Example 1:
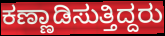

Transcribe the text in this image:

ಕಣ್ಣಾಡಿಸುತ್ತಿದ್ದರು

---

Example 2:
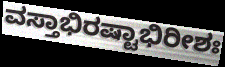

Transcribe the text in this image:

ವಸ್ತಾಭಿರಷ್ಟಾಭಿರೀಶಃ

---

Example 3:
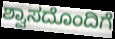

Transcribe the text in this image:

ಶ್ವಾಸದೊಂದಿಗೆ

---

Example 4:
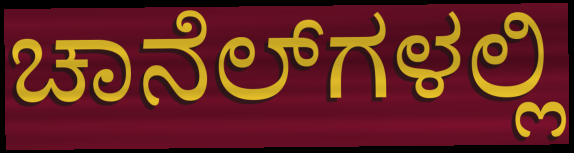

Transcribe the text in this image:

ಚಾನೆಲ್‍ಗಳಲ್ಲಿ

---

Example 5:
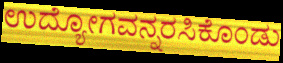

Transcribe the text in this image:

ಉದ್ಯೋಗವನ್ನರಸಿಕೊಂಡು